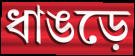
ধাঙড়ে